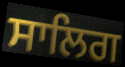
ਸਾਲਿਗ